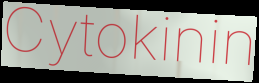
Cytokinin